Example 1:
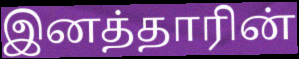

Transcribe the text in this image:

இனத்தாரின்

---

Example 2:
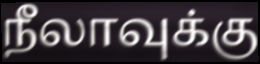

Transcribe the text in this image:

நீலாவுக்கு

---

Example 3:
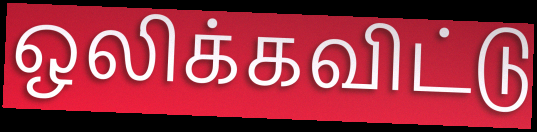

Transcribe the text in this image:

ஒலிக்கவிட்டு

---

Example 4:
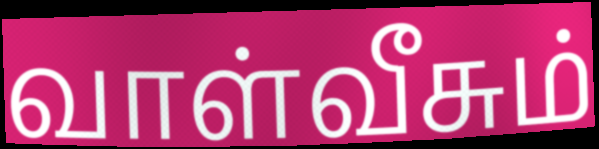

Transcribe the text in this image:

வாள்வீசும்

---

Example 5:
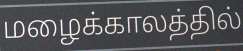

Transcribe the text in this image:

மழைக்காலத்தில்